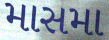
માસમા